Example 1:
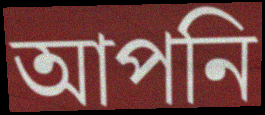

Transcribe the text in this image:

আপনি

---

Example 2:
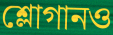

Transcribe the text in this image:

শ্লোগানও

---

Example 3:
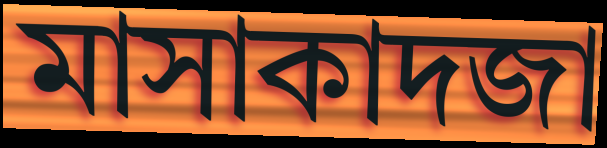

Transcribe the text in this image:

মাসাকাদজা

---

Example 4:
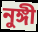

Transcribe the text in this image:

নুঙ্গী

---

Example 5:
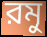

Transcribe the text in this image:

রমু